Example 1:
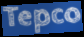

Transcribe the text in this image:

Tepco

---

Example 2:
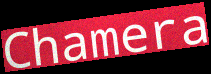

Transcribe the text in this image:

Chamera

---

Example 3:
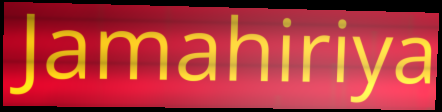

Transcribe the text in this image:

Jamahiriya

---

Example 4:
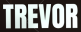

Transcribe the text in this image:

TREVOR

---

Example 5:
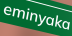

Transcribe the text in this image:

eminyaka